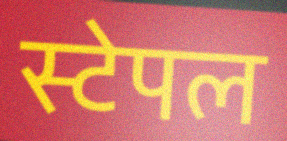
स्टेपल